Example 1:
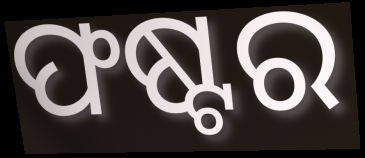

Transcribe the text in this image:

ଫଷ୍ଟର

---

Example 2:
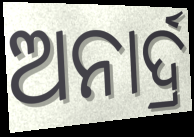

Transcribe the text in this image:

ଅନାର୍ଦ୍ର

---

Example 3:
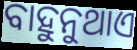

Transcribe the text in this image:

ବାହୁନୁଥାଏ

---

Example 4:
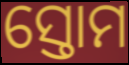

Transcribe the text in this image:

ସ୍ତୋମ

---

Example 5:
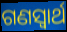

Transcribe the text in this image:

ଗଣସ୍ୱାର୍ଥ